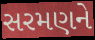
સરમણને